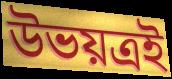
উভয়ত্রই